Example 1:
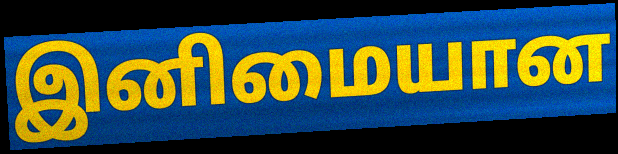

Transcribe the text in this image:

இனிமையான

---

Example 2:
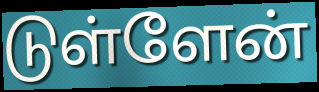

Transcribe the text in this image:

டுள்ளேன்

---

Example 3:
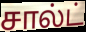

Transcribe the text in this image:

சால்ட்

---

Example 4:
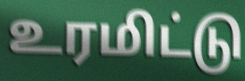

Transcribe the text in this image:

உரமிட்டு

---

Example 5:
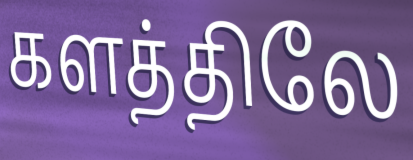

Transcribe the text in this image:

களத்திலே